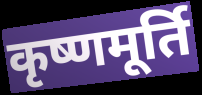
कृष्णमूर्ति